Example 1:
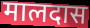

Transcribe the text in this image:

मालदास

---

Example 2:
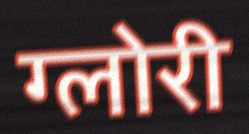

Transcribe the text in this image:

ग्लोरी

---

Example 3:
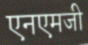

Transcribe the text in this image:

एनएमजी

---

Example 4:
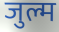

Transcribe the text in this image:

जुल्म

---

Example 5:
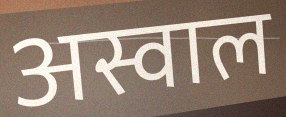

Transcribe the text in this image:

अस्वाल